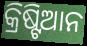
କ୍ରିଷ୍ଟିଆନ